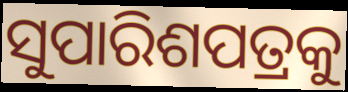
ସୁପାରିଶପତ୍ରକୁ